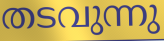
തടവുന്നു